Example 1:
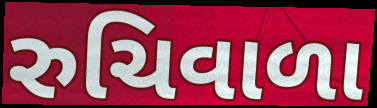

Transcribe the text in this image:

રુચિવાળા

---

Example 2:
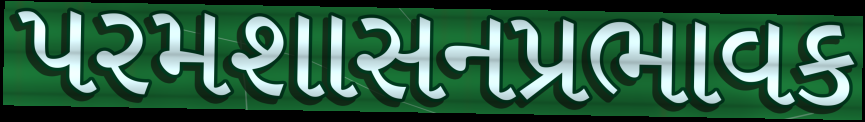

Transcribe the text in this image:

પરમશાસનપ્રભાવક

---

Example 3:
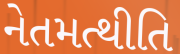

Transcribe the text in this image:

નેતમત્થીતિ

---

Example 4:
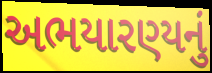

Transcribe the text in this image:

અભયારણ્યનું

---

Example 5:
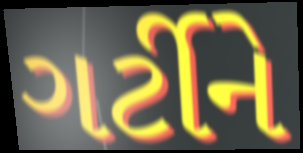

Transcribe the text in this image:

ગર્ટીને